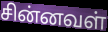
சின்னவள்